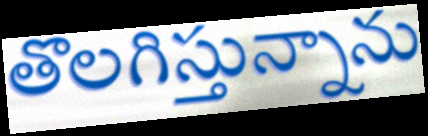
తొలగిస్తున్నాను